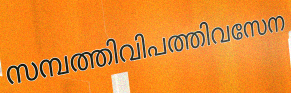
സമ്പത്തിവിപത്തിവസേന